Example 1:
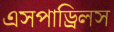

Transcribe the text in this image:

এসপাড্রিলস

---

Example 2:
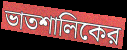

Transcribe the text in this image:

ভাতশালিকের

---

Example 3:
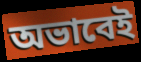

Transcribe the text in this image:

অভাবেই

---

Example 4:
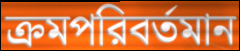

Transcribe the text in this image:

ক্রমপরিবর্তমান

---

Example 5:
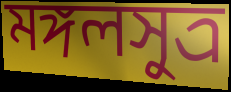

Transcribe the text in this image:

মঙ্গলসুত্র